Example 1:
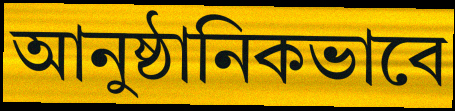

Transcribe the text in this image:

আনুষ্ঠানিকভাবে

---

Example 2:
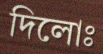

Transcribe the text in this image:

দিলোঃ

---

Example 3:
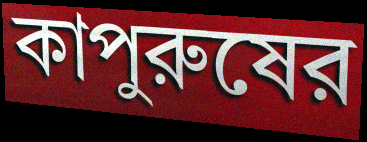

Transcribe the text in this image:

কাপুরুষের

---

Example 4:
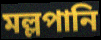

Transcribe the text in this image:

মল্লপানি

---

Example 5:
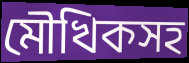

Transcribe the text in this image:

মৌখিকসহ